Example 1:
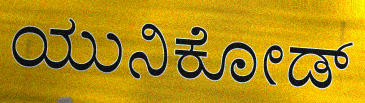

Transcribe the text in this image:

ಯುನಿಕೋಡ್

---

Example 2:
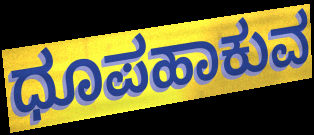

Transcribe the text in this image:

ಧೂಪಹಾಕುವ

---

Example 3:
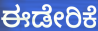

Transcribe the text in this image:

ಈಡೇರಿಕೆ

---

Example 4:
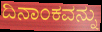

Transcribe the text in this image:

ದಿನಾಂಕವನ್ನು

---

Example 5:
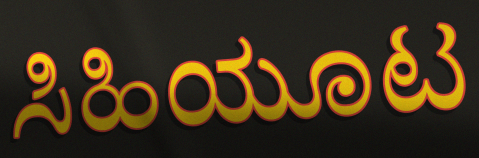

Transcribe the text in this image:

ಸಿಹಿಯೂಟ